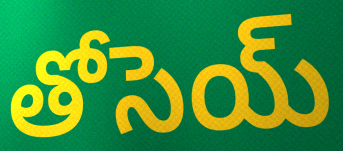
తోసెయ్